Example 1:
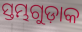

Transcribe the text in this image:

ସ୍ତମ୍ଭଗୁଡ଼ାକ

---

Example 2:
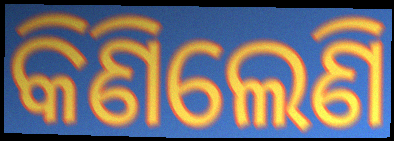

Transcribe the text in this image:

କିଣିଲେଣି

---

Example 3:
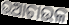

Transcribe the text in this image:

ଉଆଚାଉଳ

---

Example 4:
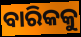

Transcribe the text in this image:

ବାରିକକୁ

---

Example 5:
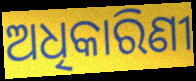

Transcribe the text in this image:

ଅଧିକାରିଣୀ